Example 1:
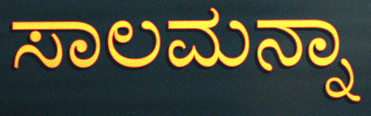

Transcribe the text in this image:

ಸಾಲಮನ್ನಾ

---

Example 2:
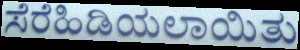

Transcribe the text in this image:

ಸೆರೆಹಿಡಿಯಲಾಯಿತು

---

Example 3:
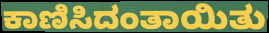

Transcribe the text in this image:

ಕಾಣಿಸಿದಂತಾಯಿತು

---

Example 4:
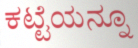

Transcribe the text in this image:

ಕಟ್ಟೆಯನ್ನೂ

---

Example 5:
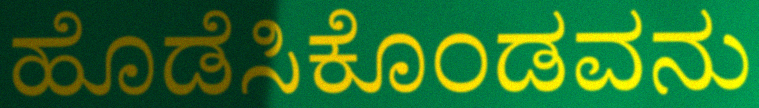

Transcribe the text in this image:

ಹೊಡೆಸಿಕೊಂಡವನು